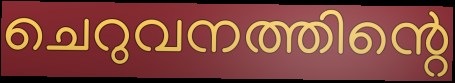
ചെറുവനത്തിന്റെ